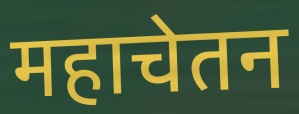
महाचेतन